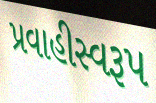
પ્રવાહીસ્વરૂપ